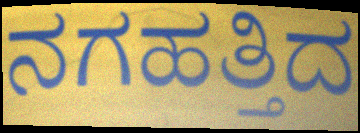
ನಗಹತ್ತಿದ